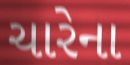
ચારેના